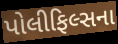
પોલીફિલ્સના